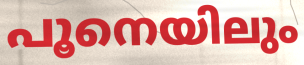
പൂനെയിലും